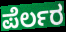
ಪೆರ್ಲರ